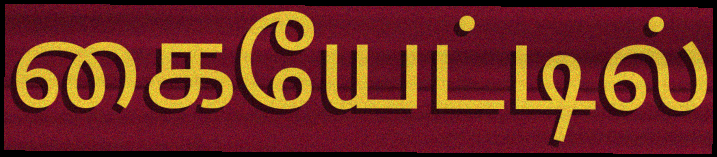
கையேட்டில்